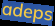
adeps